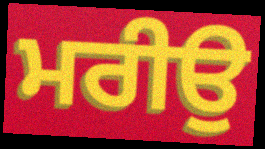
ਮਰੀਉ